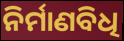
ନିର୍ମାଣବିଧି